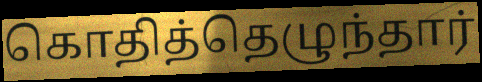
கொதித்தெழுந்தார்